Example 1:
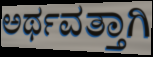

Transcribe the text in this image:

ಅರ್ಥವತ್ತಾಗಿ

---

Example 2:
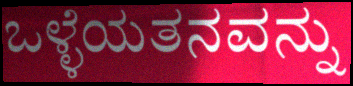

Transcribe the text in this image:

ಒಳ್ಳೆಯತನವನ್ನು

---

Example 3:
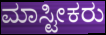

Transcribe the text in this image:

ಮಾಸ್ಟೀಕರು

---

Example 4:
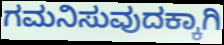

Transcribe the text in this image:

ಗಮನಿಸುವುದಕ್ಕಾಗಿ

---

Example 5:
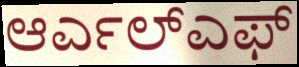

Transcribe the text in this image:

ಆರ್ಎಲ್ಎಫ್